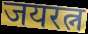
जयरत्न